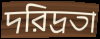
দরিদ্রতা